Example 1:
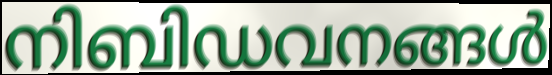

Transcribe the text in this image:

നിബിഡവനങ്ങൾ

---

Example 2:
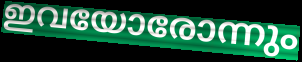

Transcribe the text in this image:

ഇവയോരോന്നും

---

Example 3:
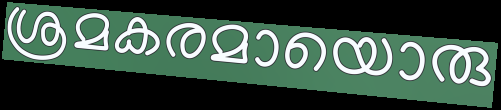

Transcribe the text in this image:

ശ്രമകരമായൊരു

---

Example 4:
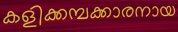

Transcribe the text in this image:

കളിക്കമ്പക്കാരനായ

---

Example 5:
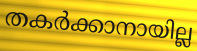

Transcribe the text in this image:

തകർക്കാനായില്ല